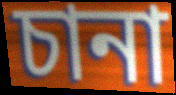
চানা